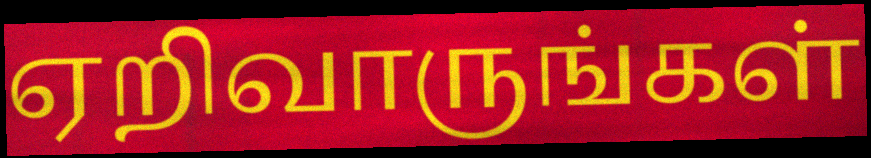
ஏறிவாருங்கள்